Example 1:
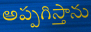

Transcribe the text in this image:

అప్పగిస్తాను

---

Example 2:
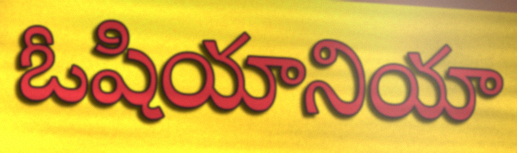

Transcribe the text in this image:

ఓషియానియా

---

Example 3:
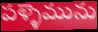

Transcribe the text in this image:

పళ్ళెమును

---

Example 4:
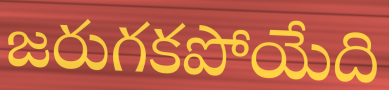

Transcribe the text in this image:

జరుగకపోయేది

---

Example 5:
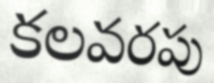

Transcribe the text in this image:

కలవరపు